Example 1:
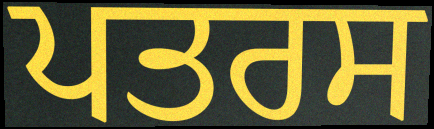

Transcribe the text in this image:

ਪਤਰਸ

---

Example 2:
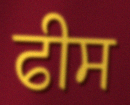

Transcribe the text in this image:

ਫੀਸ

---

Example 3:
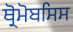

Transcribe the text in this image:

ਥ੍ਰੋਮੋਬਸਿਸ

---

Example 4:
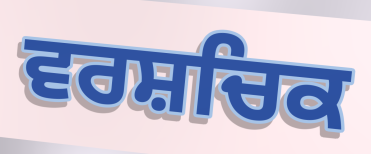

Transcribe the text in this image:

ਵਰਸ਼ਚਿਕ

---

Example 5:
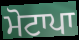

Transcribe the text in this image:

ਮੋਟਾਪਾ